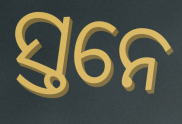
ସ୍ତନେ